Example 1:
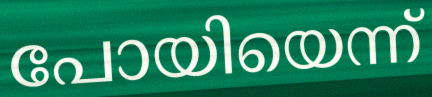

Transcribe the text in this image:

പോയിയെന്ന്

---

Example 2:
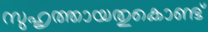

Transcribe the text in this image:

സുഹൃത്തായതുകൊണ്ട്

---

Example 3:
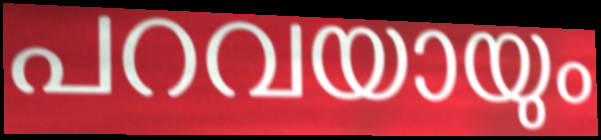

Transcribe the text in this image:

പറവയായും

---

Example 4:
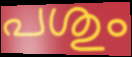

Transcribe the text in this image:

പശും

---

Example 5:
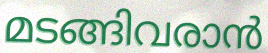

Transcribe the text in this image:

മടങ്ങിവരാൻ